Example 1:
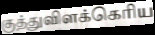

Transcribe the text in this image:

குத்துவிளக்கெரிய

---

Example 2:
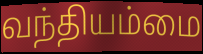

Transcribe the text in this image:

வந்தியம்மை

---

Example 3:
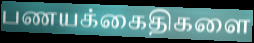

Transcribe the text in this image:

பணயக்கைதிகளை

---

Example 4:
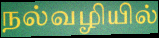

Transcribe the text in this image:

நல்வழியில்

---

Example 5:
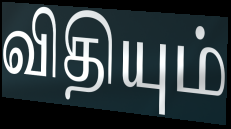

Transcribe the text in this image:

விதியும்